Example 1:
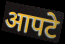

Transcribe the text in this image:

आपटे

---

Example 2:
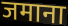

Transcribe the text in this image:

जमाना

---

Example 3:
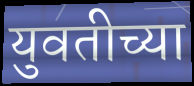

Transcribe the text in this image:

युवतीच्या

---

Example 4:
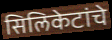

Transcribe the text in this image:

सिलिकेटांचे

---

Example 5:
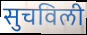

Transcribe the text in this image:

सुचविली